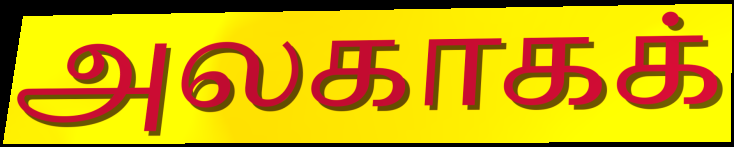
அலகாகக்